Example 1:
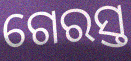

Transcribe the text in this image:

ଗେରସ୍ତ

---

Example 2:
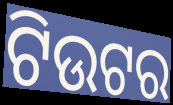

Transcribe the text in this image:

ଟିଉଟର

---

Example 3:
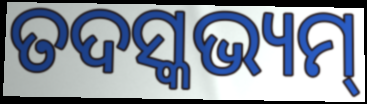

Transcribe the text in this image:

ତଦସ୍କଭ୍ୟମ୍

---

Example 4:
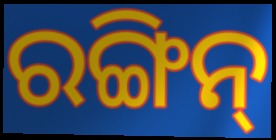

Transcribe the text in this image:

ରଙ୍ଗିନ୍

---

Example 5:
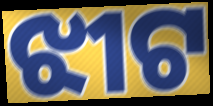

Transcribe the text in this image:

ଝୀଟ